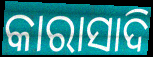
କାରାସାଦି